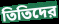
তিতিদের